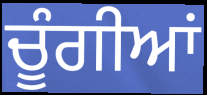
ਚੂੰਗੀਆਂ